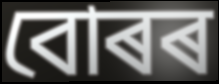
বোৰৰ